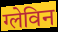
ग्लेविन